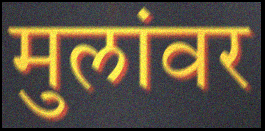
मुलांवर